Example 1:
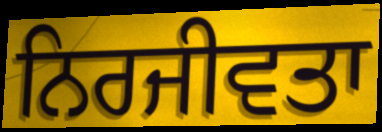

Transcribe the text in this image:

ਨਿਰਜੀਵਤਾ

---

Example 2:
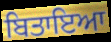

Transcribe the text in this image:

ਬਿਤਾਇਆ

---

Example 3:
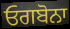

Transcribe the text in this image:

ਓਗਬੋਨਾ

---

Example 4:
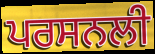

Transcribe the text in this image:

ਪਰਸਨਲੀ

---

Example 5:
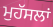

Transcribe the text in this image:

ਮੁਹੱਸਲਾਂ